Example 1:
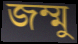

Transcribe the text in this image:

জম্মু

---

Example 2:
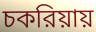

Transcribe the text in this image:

চকরিয়ায়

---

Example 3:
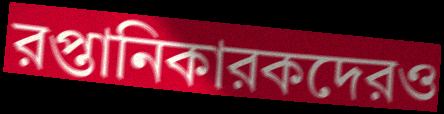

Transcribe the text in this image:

রপ্তানিকারকদেরও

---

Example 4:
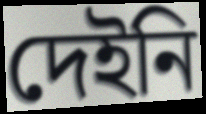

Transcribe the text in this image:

দেইনি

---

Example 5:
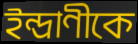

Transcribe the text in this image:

ইন্দ্রাণীকে